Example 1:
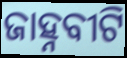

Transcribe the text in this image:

ଜାହ୍ନବୀଟି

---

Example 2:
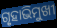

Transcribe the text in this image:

ଗୃହାଭିମୁଖୀ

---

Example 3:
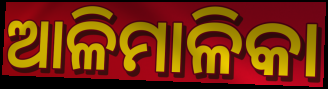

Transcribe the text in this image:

ଆଳିମାଳିକା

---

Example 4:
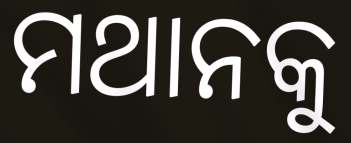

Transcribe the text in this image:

ମଥାନକୁ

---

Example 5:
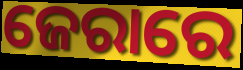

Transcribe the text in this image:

ଜେରାରେ